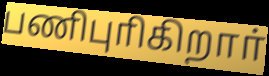
பணிபுரிகிறார்